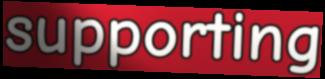
supporting